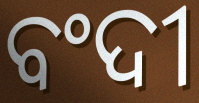
ବଂଦୀ